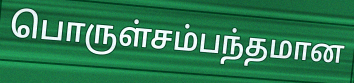
பொருள்சம்பந்தமான